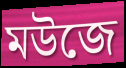
মউজে